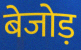
बेजोड़